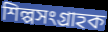
শিল্পসংগ্রাহক